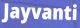
Jayvanti